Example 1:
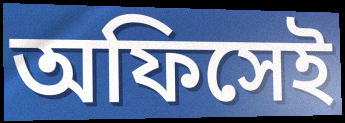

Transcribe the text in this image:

অফিসেই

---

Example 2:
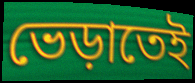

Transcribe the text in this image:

ভেড়াতেই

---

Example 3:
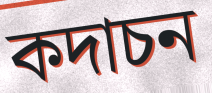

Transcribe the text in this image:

কদাচন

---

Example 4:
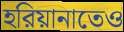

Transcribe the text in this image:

হরিয়ানাতেও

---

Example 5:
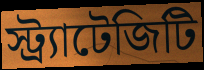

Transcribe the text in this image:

স্ট্র্যাটেজিটি